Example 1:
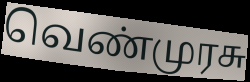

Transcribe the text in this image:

வெண்முரசு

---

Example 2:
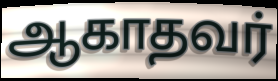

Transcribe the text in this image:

ஆகாதவர்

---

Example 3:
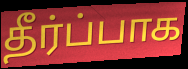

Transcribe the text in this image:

தீர்ப்பாக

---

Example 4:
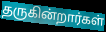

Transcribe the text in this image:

தருகின்றார்கள்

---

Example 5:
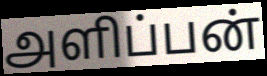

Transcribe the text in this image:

அளிப்பன்